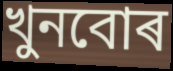
খুনবোৰ